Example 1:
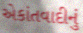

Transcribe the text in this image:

એકાંતવાદીનું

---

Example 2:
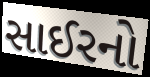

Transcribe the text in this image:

સાઈરનો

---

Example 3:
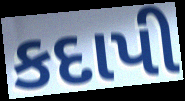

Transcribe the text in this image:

કદાપી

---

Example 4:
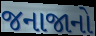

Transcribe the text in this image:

જનાજાનો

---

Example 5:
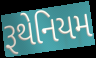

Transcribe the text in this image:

રૂથેનિયમ